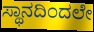
ಸ್ಥಾನದಿಂದಲೇ